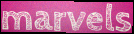
marvels